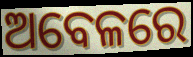
ଅବେଳରେ